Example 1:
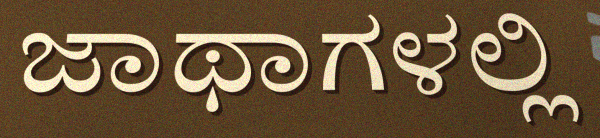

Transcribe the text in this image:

ಜಾಥಾಗಳಲ್ಲಿ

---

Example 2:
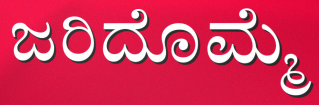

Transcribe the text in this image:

ಜರಿದೊಮ್ಮೆ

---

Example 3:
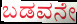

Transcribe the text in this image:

ಬಡವನೇ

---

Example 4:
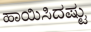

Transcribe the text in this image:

ಹಾಯಿಸಿದಷ್ಟು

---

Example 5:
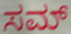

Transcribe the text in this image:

ಸಮ್